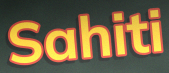
Sahiti